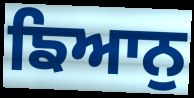
ਙਿਆਨੁ